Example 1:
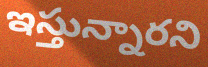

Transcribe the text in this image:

ఇస్తున్నారని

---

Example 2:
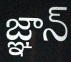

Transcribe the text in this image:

జ్ఞాన్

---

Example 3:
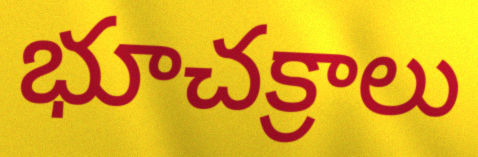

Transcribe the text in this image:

భూచక్రాలు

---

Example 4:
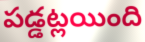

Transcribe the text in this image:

పడ్డట్లయింది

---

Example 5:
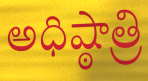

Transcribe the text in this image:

అధిష్ఠాత్రి